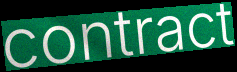
contract